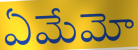
ఏమేమో